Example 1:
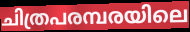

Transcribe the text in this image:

ചിത്രപരമ്പരയിലെ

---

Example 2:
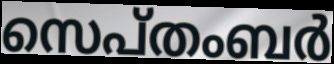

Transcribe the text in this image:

സെപ്തംബർ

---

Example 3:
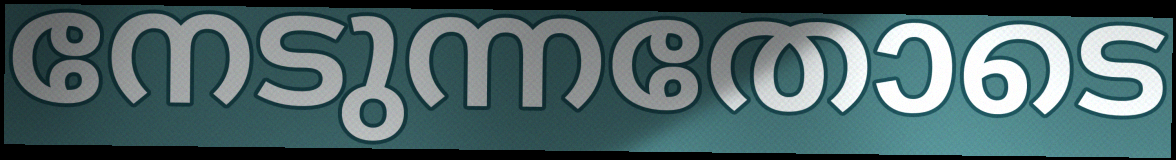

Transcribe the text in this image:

നേടുന്നതോടെ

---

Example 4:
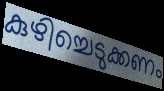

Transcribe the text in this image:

കുഴിച്ചെടുക്കണം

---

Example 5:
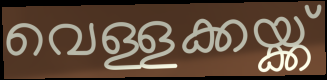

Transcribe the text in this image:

വെള്ളക്കയ്ക്ക്